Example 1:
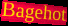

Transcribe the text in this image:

Bagehot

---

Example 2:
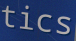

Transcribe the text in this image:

tics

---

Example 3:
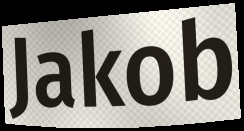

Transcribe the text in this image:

Jakob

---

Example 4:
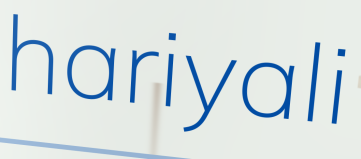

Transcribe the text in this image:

hariyali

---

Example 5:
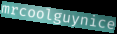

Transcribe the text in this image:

mrcoolguynice